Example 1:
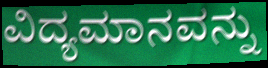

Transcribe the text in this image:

ವಿದ್ಯಮಾನವನ್ನು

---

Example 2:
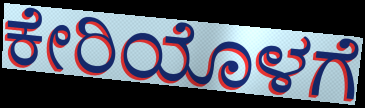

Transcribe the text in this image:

ಕೇರಿಯೊಳಗೆ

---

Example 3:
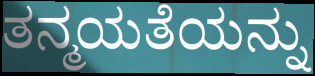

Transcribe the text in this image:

ತನ್ಮಯತೆಯನ್ನು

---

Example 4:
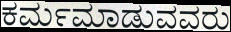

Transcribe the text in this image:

ಕರ್ಮಮಾಡುವವರು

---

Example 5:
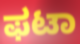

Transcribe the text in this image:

ಫಟಾ